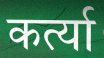
कर्त्या